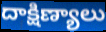
దాక్షిణ్యాలు